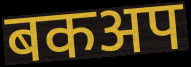
बकअप